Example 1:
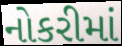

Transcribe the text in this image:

નોકરીમાં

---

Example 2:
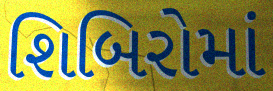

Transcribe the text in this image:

શિબિરોમાં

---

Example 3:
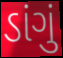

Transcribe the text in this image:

ડાંગું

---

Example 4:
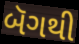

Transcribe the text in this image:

બૅગથી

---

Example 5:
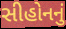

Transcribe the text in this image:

સીહોનનું